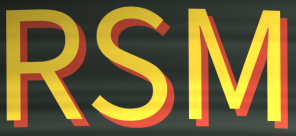
RSM